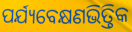
ପର୍ଯ୍ୟବେକ୍ଷଣଭିତ୍ତିକ